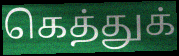
கெத்துக்